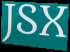
JSX